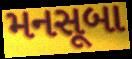
મનસૂબા